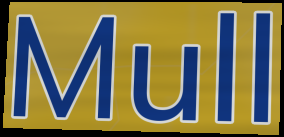
Mull